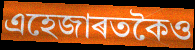
এহেজাৰতকৈও